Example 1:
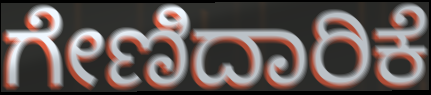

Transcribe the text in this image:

ಗೇಣಿದಾರಿಕೆ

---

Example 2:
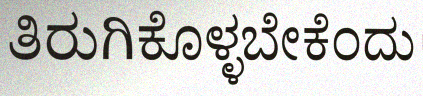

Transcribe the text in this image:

ತಿರುಗಿಕೊಳ್ಳಬೇಕೆಂದು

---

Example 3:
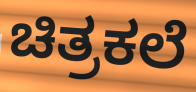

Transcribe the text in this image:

ಚಿತ್ರಕಲೆ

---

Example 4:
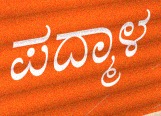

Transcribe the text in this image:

ಪದ್ಮಾಳ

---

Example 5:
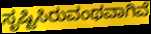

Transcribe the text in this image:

ಸೃಷ್ಟಿಸಿರುವಂಥವಾಗಿವೆ